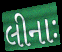
લીનાઃ